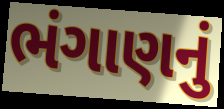
ભંગાણનું